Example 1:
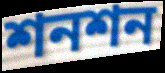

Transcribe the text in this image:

শনশন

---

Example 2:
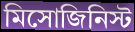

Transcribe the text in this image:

মিসোজিনিস্ট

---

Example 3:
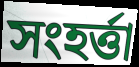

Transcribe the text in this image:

সংহর্ত্তা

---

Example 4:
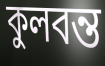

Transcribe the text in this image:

কুলবন্ত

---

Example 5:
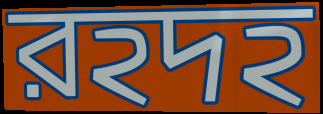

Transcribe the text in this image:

রহদহ